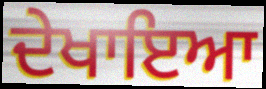
ਦੇਖਾਇਆ